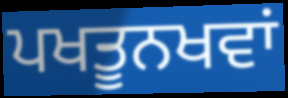
ਪਖਤੂਨਖਵਾਂ